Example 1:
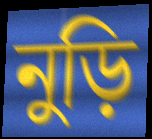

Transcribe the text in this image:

নুড়ি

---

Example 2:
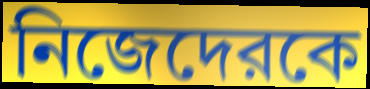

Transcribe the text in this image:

নিজেদেরকে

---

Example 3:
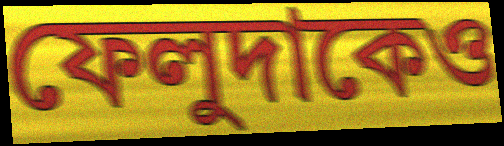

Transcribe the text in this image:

ফেলুদাকেও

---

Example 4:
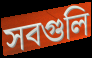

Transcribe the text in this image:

সবগুলি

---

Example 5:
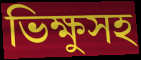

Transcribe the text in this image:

ভিক্ষুসহ